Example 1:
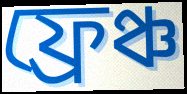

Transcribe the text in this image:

ফ্রেঞ্চ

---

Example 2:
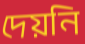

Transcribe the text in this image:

দেয়নি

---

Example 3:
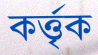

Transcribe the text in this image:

কর্ত্তৃক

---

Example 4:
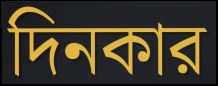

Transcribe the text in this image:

দিনকার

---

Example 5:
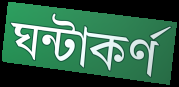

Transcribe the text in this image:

ঘন্টাকর্ণ